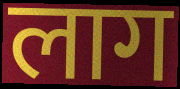
लाग